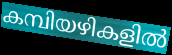
കമ്പിയഴികളിൽ